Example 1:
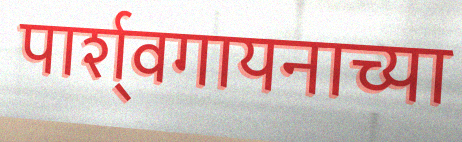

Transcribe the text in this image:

पार्श्वगायनाच्या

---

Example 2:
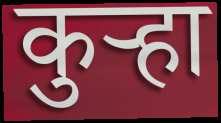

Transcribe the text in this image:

कुऱ्हा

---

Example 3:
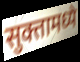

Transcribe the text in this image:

सुक्तामध्ये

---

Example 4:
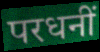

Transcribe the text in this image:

परधनीं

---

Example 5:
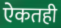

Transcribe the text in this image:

ऐकतही